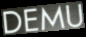
DEMU